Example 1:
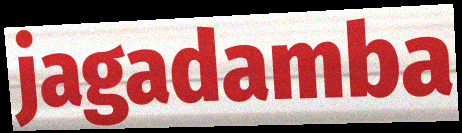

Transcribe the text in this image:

jagadamba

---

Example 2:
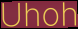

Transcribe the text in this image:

Uhoh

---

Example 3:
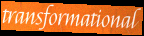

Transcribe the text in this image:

transformational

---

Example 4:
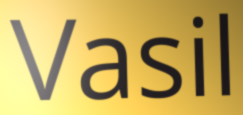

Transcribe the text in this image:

Vasil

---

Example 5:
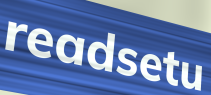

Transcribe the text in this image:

readsetu